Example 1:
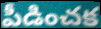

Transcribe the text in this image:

పీడించక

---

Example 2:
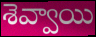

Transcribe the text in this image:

శెవ్వాయి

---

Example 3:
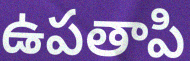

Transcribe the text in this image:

ఉపతాపి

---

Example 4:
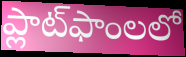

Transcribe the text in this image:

ప్లాట్‌ఫాంలలో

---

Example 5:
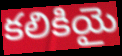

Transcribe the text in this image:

కలికియై